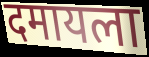
दमायला